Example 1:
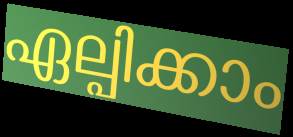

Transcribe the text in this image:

ഏല്പിക്കാം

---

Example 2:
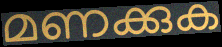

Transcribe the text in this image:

മണക്കുക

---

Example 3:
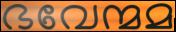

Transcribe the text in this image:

ഭവേന്മമ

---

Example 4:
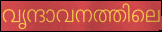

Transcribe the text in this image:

വൃന്ദാവനത്തിലെ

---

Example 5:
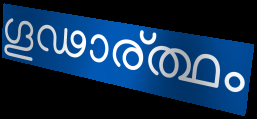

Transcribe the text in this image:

ഗൂഢാര്ത്ഥം